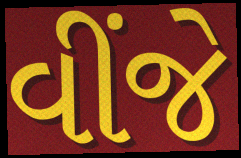
વીંજે